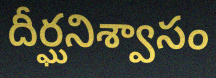
దీర్ఘనిశ్వాసం